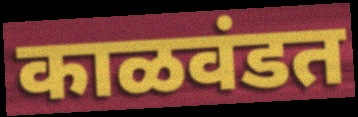
काळवंडत